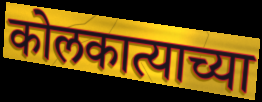
कोलकात्याच्या